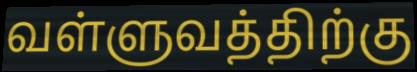
வள்ளுவத்திற்கு